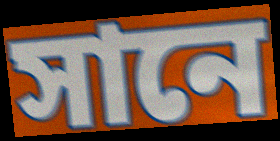
সানে